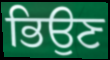
ਭਿਉਣ